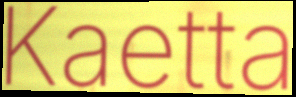
Kaetta